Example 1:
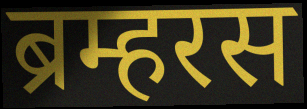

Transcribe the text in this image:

ब्रम्हरस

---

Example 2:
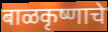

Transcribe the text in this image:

बाळकृष्णाचे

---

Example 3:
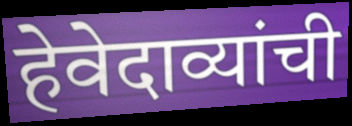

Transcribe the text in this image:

हेवेदाव्यांची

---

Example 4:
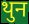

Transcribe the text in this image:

थुन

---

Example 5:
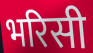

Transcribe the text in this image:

भरिसी